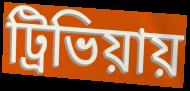
ট্রিভিয়ায়